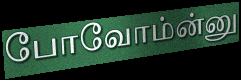
போவோம்ன்னு